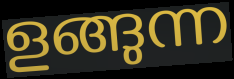
ളങ്ങുന്ന